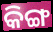
କିଙ୍ଗ